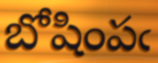
బోషింపఁ